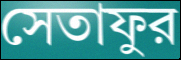
সেতাফুর